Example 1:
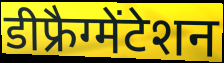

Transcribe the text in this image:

डीफ्रैग्मेंटेशन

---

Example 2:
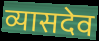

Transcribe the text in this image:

व्यासदेव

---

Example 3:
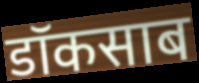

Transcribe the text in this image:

डॉकसाब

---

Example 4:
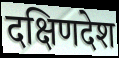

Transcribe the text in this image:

दक्षिणदेश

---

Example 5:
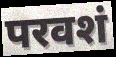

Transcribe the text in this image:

परवशं